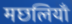
मछलियाँ